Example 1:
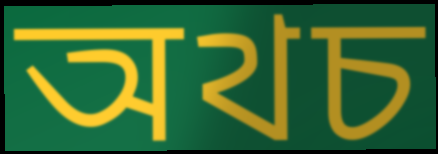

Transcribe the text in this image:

অথচ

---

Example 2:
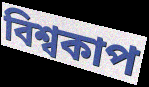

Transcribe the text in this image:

বিশ্বকাপ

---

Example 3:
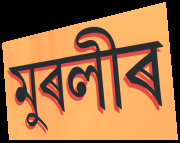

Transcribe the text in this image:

মুৰলীৰ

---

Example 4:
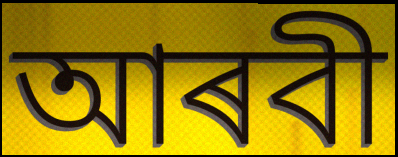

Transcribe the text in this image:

আৰবী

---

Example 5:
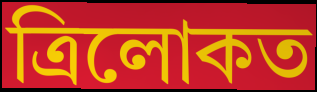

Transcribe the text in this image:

ত্ৰিলোকত